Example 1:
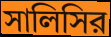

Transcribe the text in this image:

সালিসির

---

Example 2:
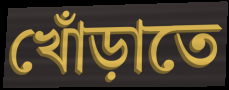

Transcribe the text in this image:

খোঁড়াতে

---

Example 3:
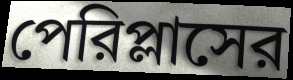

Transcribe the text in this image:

পেরিপ্লাসের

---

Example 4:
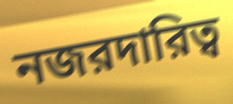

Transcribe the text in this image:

নজরদারিত্ব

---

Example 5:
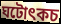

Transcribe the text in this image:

ঘটোৎকচ